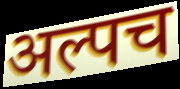
अल्पच